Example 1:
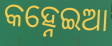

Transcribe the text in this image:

କହ୍ନେଇଆ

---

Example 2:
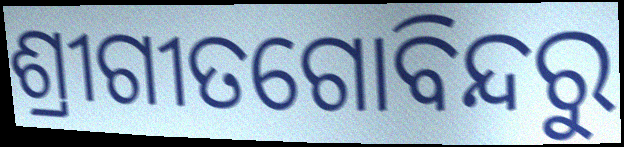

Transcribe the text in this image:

ଶ୍ରୀଗୀତଗୋବିନ୍ଦରୁ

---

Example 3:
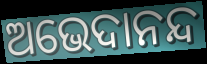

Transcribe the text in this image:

ଅଭେଦାନନ୍ଦ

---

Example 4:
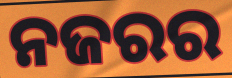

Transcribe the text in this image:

ନଜରର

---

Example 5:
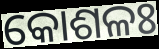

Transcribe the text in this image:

କୋଶଳଃ